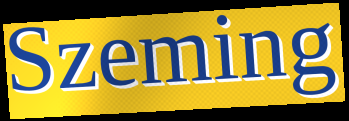
Szeming